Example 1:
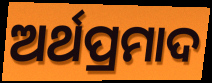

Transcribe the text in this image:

ଅର୍ଥପ୍ରମାଦ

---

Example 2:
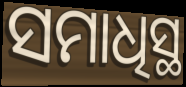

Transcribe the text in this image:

ସମାଧିସ୍ଥ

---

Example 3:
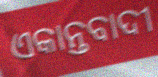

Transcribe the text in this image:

ଏକାନ୍ତବାଦୀ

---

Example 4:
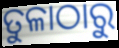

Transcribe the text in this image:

ତୁଳାଠାରୁ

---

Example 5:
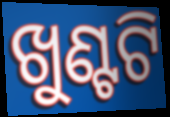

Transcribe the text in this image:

ଖୁଣ୍ଟଟି